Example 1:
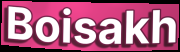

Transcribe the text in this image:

Boisakh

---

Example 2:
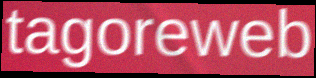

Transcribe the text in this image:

tagoreweb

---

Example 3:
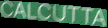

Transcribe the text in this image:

CALCUTTA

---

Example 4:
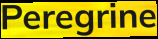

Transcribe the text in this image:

Peregrine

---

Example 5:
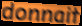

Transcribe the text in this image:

donnait